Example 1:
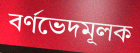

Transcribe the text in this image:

বর্ণভেদমূলক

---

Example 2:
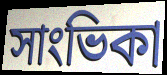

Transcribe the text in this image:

সাংভিকা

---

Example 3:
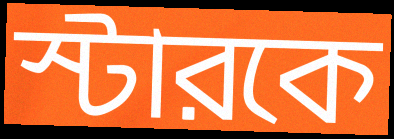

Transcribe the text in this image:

স্টারকে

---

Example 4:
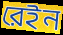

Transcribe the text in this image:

রেইন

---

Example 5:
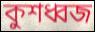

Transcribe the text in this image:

কুশধ্বজ